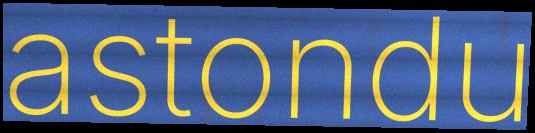
astondu